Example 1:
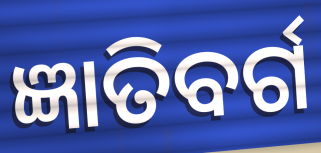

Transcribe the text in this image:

ଜ୍ଞାତିବର୍ଗ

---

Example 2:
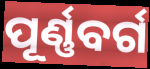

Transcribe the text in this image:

ପୂର୍ଣ୍ଣବର୍ଗ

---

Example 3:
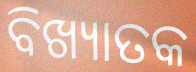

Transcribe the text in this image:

ବିଖ୍ୟାତକ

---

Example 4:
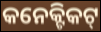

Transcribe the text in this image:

କନେକ୍ଟିକଟ୍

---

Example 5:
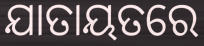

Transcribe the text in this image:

ଯାତାୟତରେ